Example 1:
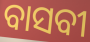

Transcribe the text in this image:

ବାସବୀ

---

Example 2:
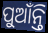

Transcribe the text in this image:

ପୁଆଁନ୍ତି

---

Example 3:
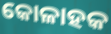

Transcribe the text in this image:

କୋଳାହକ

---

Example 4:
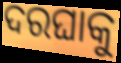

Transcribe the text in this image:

ଦରଘାକୁ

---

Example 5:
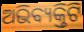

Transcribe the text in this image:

ଅଭିବ୍ୟକ୍ତିଟି